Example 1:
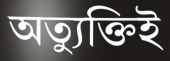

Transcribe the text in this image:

অত্যুক্তিই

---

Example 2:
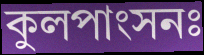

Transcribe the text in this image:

কুলপাংসনঃ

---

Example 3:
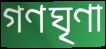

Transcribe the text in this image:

গণঘৃণা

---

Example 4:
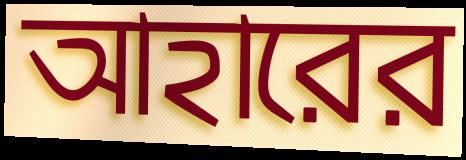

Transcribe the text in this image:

আহারের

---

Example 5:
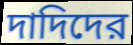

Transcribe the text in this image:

দাদিদের